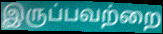
இருப்பவற்றை